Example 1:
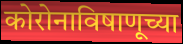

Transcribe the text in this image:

कोरोनाविषाणूच्या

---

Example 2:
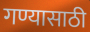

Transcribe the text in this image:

गण्यासाठी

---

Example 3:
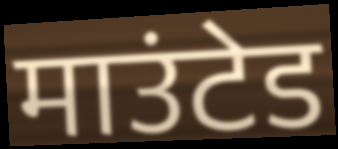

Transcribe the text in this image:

माउंटेड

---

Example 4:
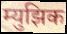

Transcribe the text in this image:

म्युझिक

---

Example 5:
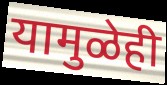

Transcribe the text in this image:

यामुळेही